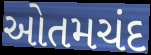
ઓતમચંદ